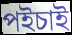
পইচাই